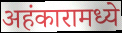
अहंकारामध्ये